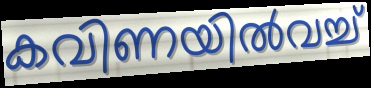
കവിണയിൽവച്ച്